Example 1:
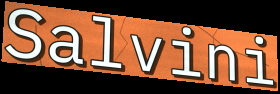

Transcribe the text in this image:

Salvini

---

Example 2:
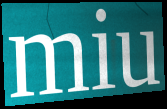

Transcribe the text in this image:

miu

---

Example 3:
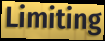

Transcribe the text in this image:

Limiting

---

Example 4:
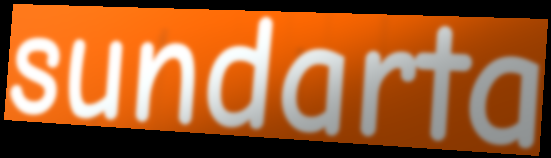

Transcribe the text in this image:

sundarta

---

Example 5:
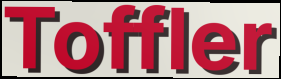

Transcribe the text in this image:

Toffler